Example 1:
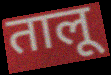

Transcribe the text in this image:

तालू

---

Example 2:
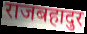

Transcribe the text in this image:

राजबहादुर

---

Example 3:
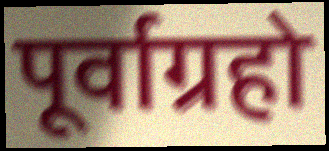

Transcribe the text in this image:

पूर्वाग्रहो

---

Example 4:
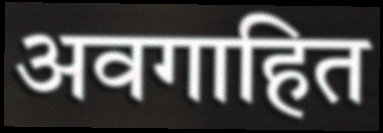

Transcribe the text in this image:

अवगाहित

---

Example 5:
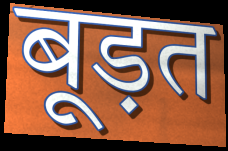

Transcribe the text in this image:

बूड़त